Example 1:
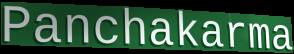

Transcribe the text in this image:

Panchakarma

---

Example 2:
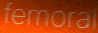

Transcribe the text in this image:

femoral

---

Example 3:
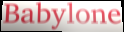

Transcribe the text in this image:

Babylone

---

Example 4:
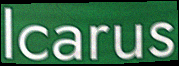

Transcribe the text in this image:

Icarus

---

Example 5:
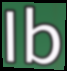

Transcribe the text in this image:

Ib